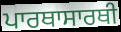
ਪਾਰਥਾਸਾਰਥੀ